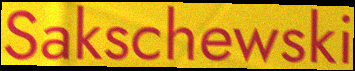
Sakschewski